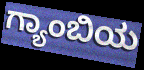
ಗ್ಯಾಂಬಿಯ